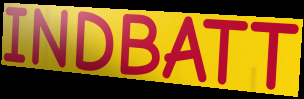
INDBATT